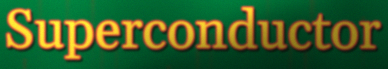
Superconductor